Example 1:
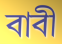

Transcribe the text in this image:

বাবী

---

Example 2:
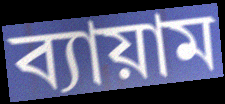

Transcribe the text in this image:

ব্যায়াম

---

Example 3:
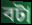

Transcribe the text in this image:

বটা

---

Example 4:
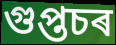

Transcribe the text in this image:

গুপ্তচৰ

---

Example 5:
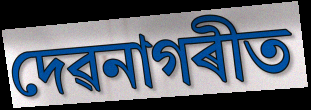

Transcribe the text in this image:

দেৱনাগৰীত